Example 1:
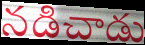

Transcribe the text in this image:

నడిచాడు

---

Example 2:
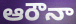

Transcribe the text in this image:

ఆరౌనా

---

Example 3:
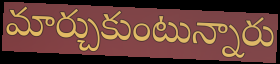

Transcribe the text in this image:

మార్చుకుంటున్నారు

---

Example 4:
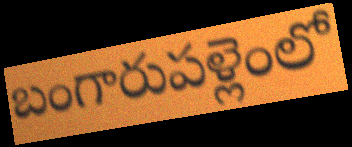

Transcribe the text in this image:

బంగారుపళ్లెంలో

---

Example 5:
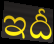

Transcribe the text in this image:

ఇదీ